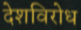
देशविरोध